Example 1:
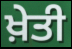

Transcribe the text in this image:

ਖ਼ੇਤੀ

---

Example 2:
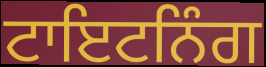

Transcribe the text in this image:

ਟਾਇਟਨਿੰਗ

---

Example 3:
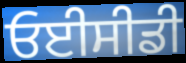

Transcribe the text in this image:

ਓਈਸੀਡੀ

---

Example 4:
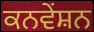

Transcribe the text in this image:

ਕਨਵੇਂਸ਼ਨ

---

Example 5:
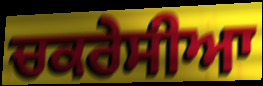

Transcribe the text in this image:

ਚਕਰੇਸੀਆ